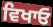
ਵਿਖਾਓ